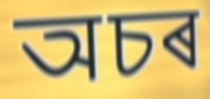
অচৰ